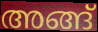
അങ്ങ്